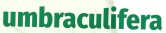
umbraculifera